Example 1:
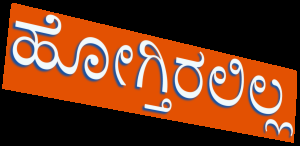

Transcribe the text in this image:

ಹೋಗ್ತಿರಲಿಲ್ಲ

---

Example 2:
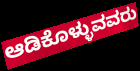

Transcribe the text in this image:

ಆಡಿಕೊಳ್ಳುವವರು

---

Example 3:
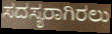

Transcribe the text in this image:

ಸದಸ್ಯರಾಗಿರಲು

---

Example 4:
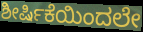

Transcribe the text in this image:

ಶೀರ್ಷಿಕೆಯಿಂದಲೇ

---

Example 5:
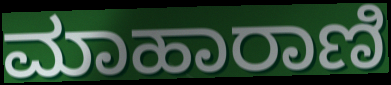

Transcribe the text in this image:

ಮಾಹಾರಾಣಿ